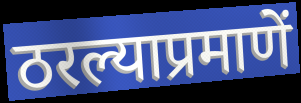
ठरल्याप्रमाणें